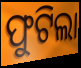
ଫୁଟିଲା